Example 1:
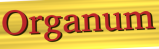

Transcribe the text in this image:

Organum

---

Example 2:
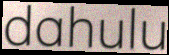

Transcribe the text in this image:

dahulu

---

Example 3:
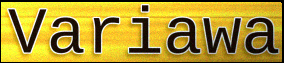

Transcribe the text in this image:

Variawa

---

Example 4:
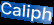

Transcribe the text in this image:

Caliph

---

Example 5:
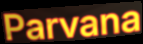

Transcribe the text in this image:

Parvana